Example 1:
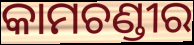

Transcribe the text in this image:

କାମଚଣ୍ଡୀର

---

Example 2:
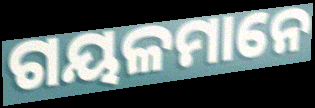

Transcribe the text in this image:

ଗୟଳମାନେ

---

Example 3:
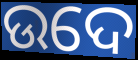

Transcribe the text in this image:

ଉଦେ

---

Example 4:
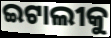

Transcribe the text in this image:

ଇଟାଲୀକୁ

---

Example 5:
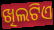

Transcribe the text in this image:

ଖିଲଟିଏ